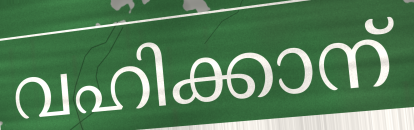
വഹിക്കാന്